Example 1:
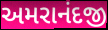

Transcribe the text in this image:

અમરાનંદજી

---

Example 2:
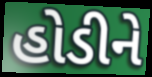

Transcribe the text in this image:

હોડીને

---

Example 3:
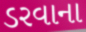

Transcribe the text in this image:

ડરવાના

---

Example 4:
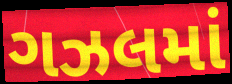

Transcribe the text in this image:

ગઝલમાં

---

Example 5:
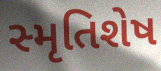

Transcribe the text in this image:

સ્મૃતિશેષ